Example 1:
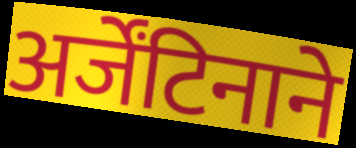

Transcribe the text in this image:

अर्जेंटिनाने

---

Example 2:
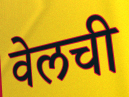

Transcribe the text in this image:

वेलची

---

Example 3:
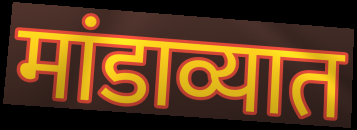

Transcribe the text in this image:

मांडाव्यात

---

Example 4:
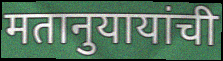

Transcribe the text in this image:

मतानुयायांची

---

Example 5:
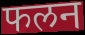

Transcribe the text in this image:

फलन